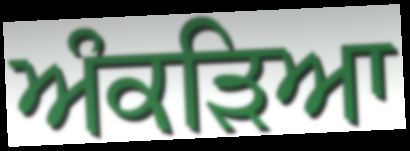
ਅੰਕੜਿਆ